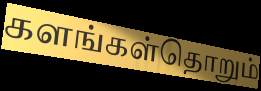
களங்கள்தொறும்